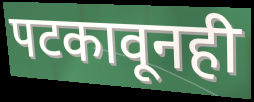
पटकावूनही